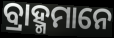
ବ୍ରାହ୍ମମାନେ